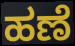
ಹಣೆ